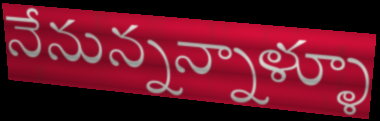
నేనున్నన్నాళ్ళూ